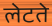
लेटते